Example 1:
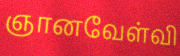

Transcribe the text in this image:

ஞானவேள்வி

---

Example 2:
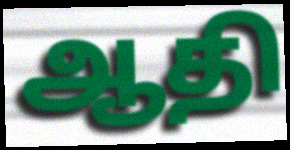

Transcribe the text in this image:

ஆதி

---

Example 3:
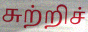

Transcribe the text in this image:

சுற்றிச்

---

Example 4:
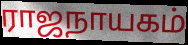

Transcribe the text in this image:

ராஜநாயகம்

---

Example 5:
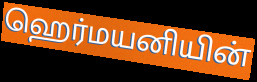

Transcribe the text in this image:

ஹெர்மயனியின்